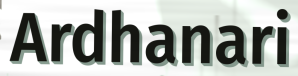
Ardhanari